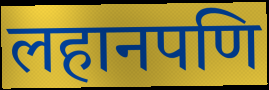
लहानपणि